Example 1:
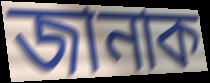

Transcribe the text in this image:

জানাক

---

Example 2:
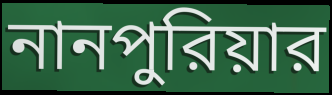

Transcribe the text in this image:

নানপুরিয়ার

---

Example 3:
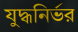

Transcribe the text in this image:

যুদ্ধনির্ভর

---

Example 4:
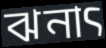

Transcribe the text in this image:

ঝনাৎ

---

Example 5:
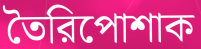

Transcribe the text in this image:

তৈরিপোশাক